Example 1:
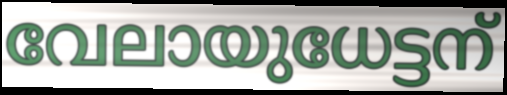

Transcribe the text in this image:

വേലായുധേട്ടന്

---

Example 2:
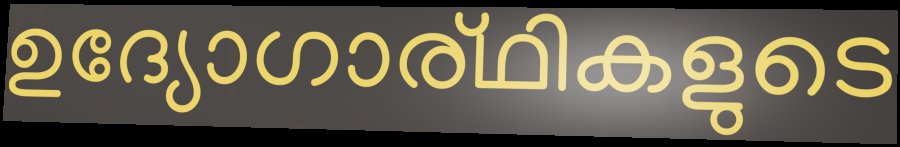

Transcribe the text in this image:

ഉദ്യോഗാര്ഥികളുടെ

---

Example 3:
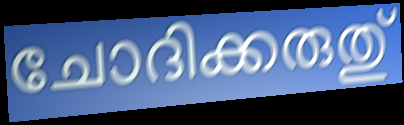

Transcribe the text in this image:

ചോദിക്കരുതു്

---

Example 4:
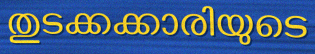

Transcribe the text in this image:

തുടക്കക്കാരിയുടെ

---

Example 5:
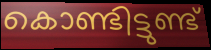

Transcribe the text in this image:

കൊണ്ടിട്ടുണ്ട്